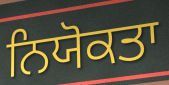
ਨਿਯੋਕਤਾ